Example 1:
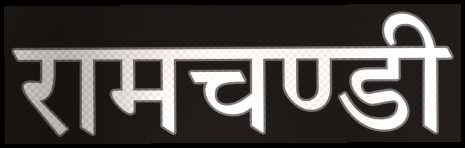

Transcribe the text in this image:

रामचण्डी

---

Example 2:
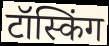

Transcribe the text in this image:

टॉस्किंग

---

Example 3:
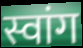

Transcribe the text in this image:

स्‍वांग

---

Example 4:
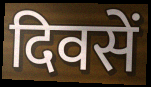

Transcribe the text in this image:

दिवसें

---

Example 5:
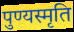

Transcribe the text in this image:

पुण्यस्मृति